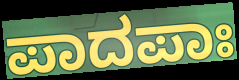
ಪಾದಪಾಃ